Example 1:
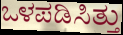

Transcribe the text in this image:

ಒಳಪಡಿಸಿತ್ತು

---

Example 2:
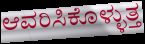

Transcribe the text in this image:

ಆವರಿಸಿಕೊಳ್ಳುತ್ತ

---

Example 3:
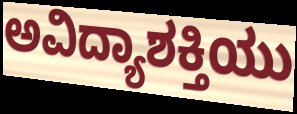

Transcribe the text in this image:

ಅವಿದ್ಯಾಶಕ್ತಿಯು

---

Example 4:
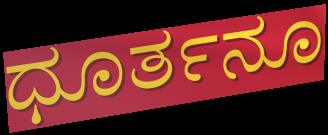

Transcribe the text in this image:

ಧೂರ್ತನೂ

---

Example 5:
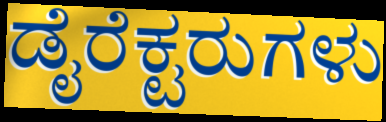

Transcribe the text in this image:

ಡೈರೆಕ್ಟರುಗಳು